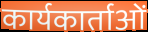
कार्यकार्ताओं